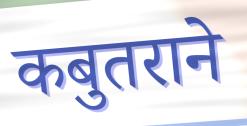
कबुतराने